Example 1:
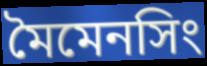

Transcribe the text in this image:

মৈমেনসিং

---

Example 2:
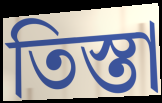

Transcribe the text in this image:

তিস্তা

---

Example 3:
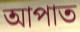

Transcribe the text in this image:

আপাত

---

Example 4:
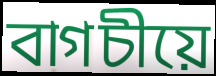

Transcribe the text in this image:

বাগচীয়ে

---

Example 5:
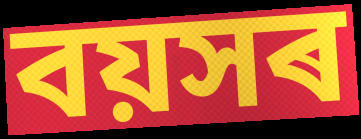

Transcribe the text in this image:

বয়সৰ